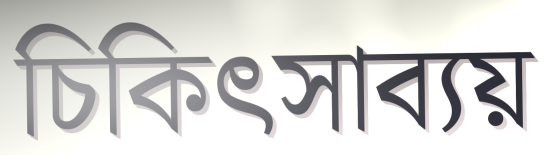
চিকিৎসাব্যয়